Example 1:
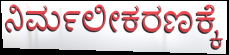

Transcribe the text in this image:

ನಿರ್ಮಲೀಕರಣಕ್ಕೆ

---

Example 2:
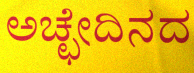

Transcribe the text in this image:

ಅಚ್ಛೇದಿನದ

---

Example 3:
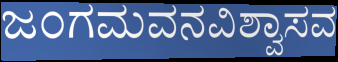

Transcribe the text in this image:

ಜಂಗಮವನವಿಶ್ವಾಸವ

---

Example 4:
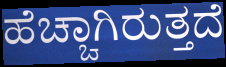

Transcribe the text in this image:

ಹೆಚ್ಚಾಗಿರುತ್ತದೆ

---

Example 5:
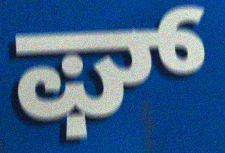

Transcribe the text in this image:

ಘ್